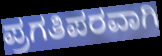
ಪ್ರಗತಿಪರವಾಗಿ